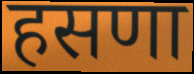
हसणा